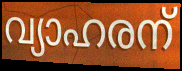
വ്യാഹരന്